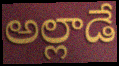
అల్లాడే